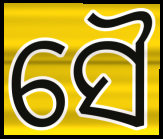
ସୈ